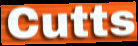
Cutts